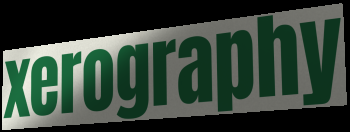
xerography